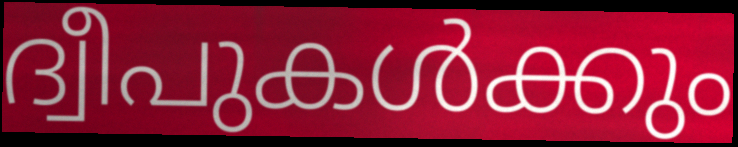
ദ്വീപുകൾക്കും